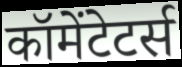
कॉमेंटेटर्स